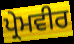
ਪ੍ਰੇਮਵੀਰ